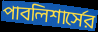
পাবলিশার্সের